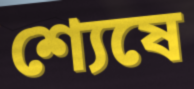
শ্যেষে